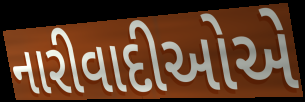
નારીવાદીઓએ